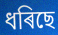
ধৰিছে